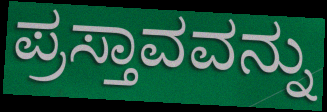
ಪ್ರಸ್ತಾವವನ್ನು